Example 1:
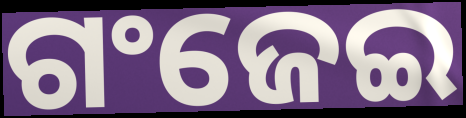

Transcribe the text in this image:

ଗଂଜେଇ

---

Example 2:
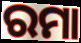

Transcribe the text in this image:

ରମା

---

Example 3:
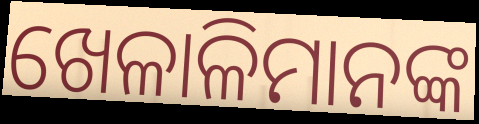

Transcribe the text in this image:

ଖେଳାଳିମାନଙ୍କ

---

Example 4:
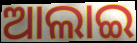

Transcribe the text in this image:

ଆଲାଇ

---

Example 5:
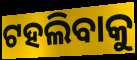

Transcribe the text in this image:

ଟହଲିବାକୁ